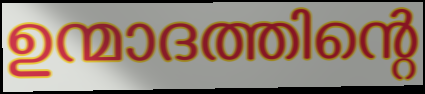
ഉന്മാദത്തിന്റെ